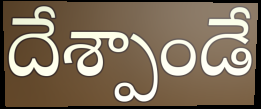
దేశ్పాండే